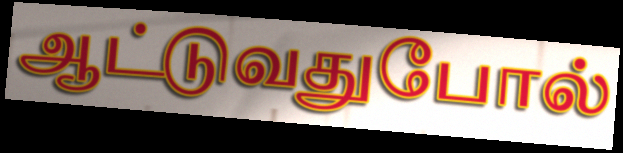
ஆட்டுவதுபோல்